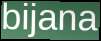
bijana